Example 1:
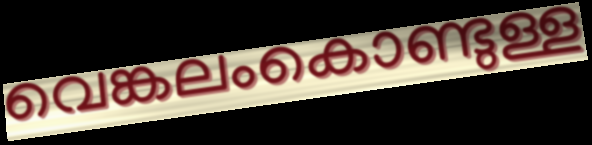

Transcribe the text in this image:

വെങ്കലംകൊണ്ടുള്ള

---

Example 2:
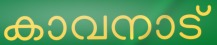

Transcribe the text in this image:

കാവനാട്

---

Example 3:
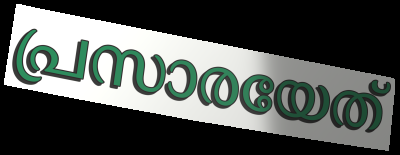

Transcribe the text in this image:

പ്രസാരയേത്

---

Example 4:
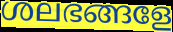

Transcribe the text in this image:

ശലഭങ്ങളേ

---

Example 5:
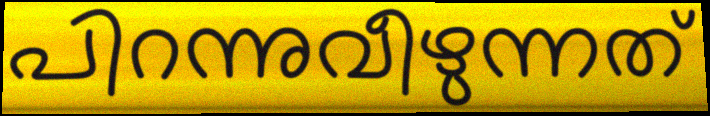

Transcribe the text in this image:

പിറന്നുവീഴുന്നത്